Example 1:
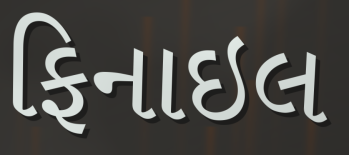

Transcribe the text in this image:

ફિનાઇલ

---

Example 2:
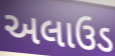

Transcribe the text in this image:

અલાઉડ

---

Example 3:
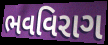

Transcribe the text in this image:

ભવવિરાગ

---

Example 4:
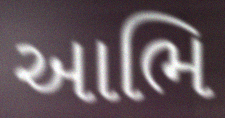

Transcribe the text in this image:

આભિ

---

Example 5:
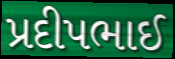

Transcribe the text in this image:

પ્રદીપભાઈ